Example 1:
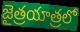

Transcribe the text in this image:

జైత్రయాత్రలో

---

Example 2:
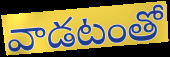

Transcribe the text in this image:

వాడటంతో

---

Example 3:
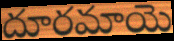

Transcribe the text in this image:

దూరమాయె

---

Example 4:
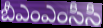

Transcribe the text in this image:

బీఎంఎంసీసీ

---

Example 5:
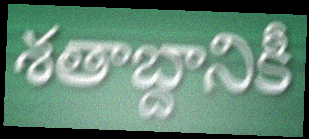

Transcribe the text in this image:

శతాబ్దానికీ